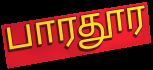
பாரதூர